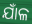
ଯାଁଳ